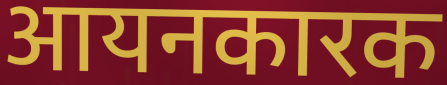
आयनकारक